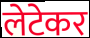
लेटेकर